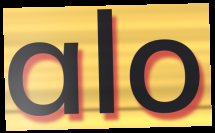
alo